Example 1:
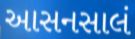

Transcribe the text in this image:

આસનસાલં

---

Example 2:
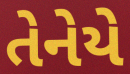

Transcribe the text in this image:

તેનેયે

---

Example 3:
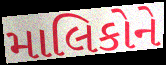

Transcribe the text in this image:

માલિકોને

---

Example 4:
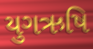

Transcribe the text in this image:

યુગઋષિ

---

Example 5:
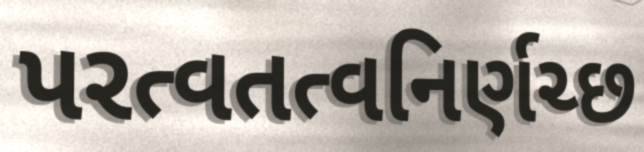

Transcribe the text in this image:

પરત્વતત્વનિર્ણચ્છ